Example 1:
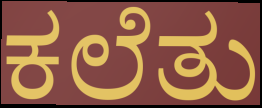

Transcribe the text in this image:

ಕಲೆತು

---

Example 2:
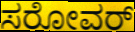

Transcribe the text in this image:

ಸರೋವರ್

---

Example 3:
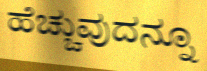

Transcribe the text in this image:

ಹೆಚ್ಚುವುದನ್ನೂ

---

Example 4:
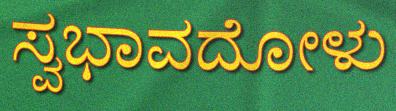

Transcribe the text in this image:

ಸ್ವಭಾವದೋಳು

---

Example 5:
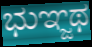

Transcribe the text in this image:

ಭುಞ್ಜಥ